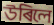
উৰিলে